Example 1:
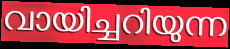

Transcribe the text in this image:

വായിച്ചറിയുന്ന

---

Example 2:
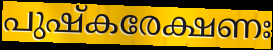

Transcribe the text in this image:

പുഷ്കരേക്ഷണഃ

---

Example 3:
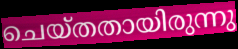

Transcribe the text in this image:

ചെയ്തതായിരുന്നു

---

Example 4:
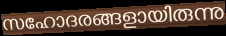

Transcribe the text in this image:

സഹോദരങ്ങളായിരുന്നു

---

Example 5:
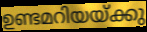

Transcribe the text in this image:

ഉണ്ടമറിയയ്ക്കു